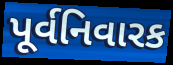
પૂર્વનિવારક